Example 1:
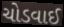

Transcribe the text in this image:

ચોડવાઈ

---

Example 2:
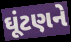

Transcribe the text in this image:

ઘૂંટણને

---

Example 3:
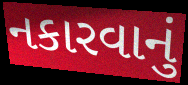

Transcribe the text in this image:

નકારવાનું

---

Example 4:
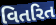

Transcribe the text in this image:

વિતરિત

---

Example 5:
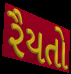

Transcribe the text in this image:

રૈયતો